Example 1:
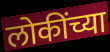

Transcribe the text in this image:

लोकींच्या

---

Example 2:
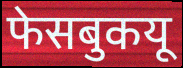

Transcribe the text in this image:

फेसबुकयू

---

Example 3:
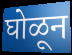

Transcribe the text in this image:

घोळून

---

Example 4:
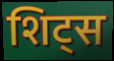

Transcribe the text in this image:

शिट्स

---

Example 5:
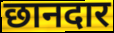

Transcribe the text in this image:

छानदार